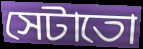
সেটাতো